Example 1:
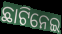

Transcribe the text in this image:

ଛାଟିନେଇ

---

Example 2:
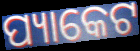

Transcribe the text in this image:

ପ୍ଯାକେଟ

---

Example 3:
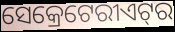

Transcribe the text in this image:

ସେକ୍ରେଟେରୀଏଟ୍‍ର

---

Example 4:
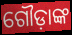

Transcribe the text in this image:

ଗୌଡ଼ାଙ୍କ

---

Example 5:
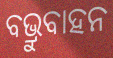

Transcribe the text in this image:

ବଭ୍ରୁବାହନ